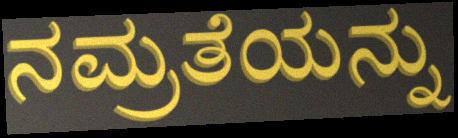
ನಮ್ರತೆಯನ್ನು